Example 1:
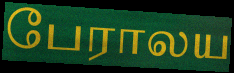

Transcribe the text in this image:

பேராலய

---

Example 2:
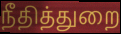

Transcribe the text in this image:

நீதித்துறை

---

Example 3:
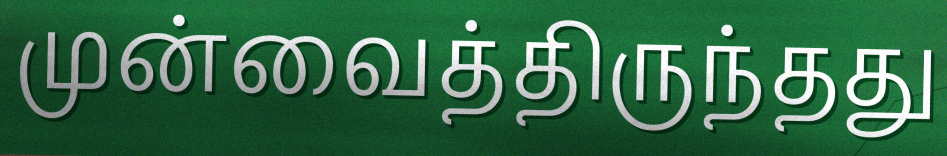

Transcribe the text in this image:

முன்வைத்திருந்தது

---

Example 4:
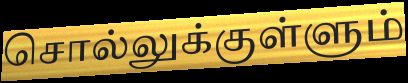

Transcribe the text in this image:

சொல்லுக்குள்ளும்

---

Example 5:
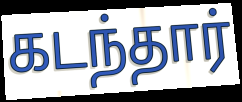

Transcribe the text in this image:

கடந்தார்